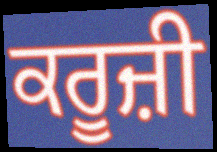
ਕਰੂਜ਼ੀ